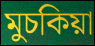
মুচকিয়া